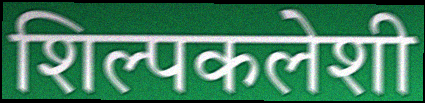
शिल्पकलेशी